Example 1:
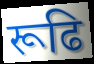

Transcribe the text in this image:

रूढि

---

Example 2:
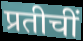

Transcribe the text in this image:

प्रतीचीं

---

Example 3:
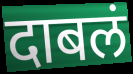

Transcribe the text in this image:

दाबलं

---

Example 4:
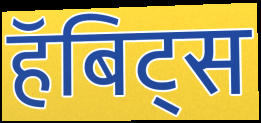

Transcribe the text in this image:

हॅबिट्स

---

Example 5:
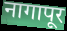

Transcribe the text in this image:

नागापूर